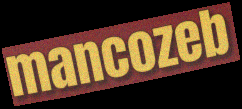
mancozeb